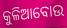
କୁଳିଆବୋଉ